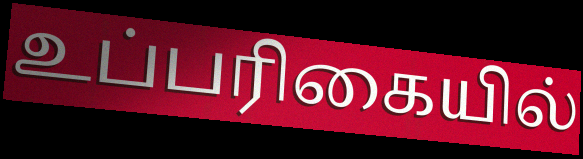
உப்பரிகையில்